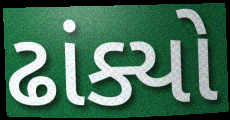
ઢાંક્યો